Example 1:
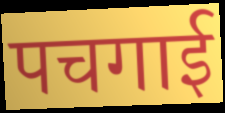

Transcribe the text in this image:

पचगाई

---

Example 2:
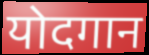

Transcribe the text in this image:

योदगान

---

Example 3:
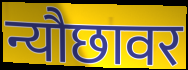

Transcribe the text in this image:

न्यौछावर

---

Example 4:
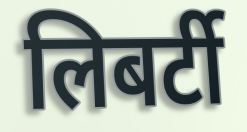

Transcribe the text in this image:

लिबर्टी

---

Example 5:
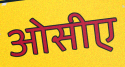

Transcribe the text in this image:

ओसीए